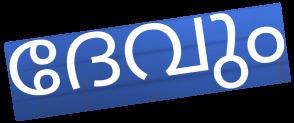
ദേവും